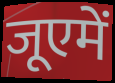
जूएमें